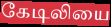
கேடிலியை